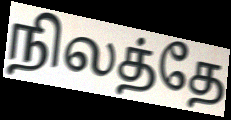
நிலத்தே